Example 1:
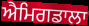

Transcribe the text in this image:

ਐਮਿਗਡਾਲਾ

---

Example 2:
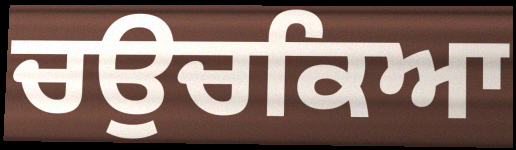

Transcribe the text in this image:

ਚਉਚਕਿਆ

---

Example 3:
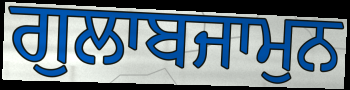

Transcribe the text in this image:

ਗੁਲਾਬਜਾਮੁਨ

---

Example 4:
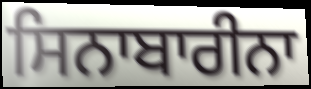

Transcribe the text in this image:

ਸਿਨਾਬਾਰੀਨਾ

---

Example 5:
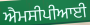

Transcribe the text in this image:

ਐਮਸੀਪੀਆਈ